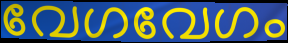
വേഗവേഗം